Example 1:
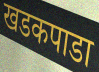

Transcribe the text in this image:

खडकपाडा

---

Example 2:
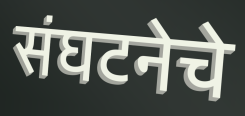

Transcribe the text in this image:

संघटनेचे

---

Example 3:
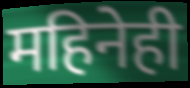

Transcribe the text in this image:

महिनेही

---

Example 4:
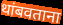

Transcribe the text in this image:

थांबवताना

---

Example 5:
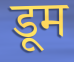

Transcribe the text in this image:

डूम